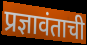
प्रज्ञावंताची